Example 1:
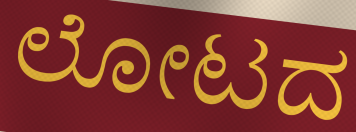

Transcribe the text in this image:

ಲೋಟದ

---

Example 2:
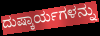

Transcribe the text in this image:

ದುಷ್ಕಾರ್ಯಗಳನ್ನು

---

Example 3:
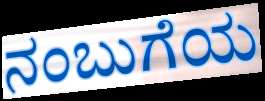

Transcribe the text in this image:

ನಂಬುಗೆಯ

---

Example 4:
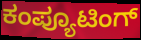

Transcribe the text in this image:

ಕಂಪ್ಯೂಟಿಂಗ್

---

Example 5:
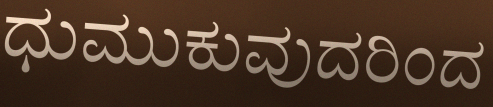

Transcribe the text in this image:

ಧುಮುಕುವುದರಿಂದ